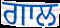
ਗਾਲ